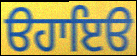
ੳਹਾਇੳ